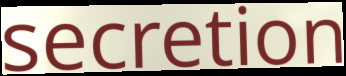
secretion